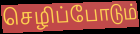
செழிப்போடும்